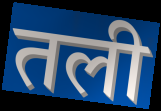
तली